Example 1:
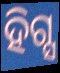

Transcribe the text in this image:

ହିଗ୍ସ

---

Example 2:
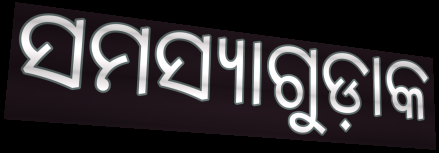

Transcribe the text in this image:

ସମସ୍ୟାଗୁଡ଼ାକ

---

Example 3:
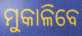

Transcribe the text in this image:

ମୁକାଳିବେ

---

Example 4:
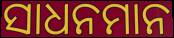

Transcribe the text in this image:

ସାଧନମାନ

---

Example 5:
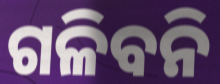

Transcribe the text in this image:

ଗଳିବନି